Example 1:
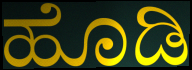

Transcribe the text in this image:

ಹೊಡಿ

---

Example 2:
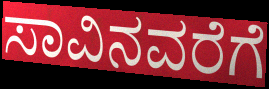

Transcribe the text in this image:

ಸಾವಿನವರೆಗೆ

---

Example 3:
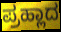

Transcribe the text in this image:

ಪ್ರಹ್ಲಾದ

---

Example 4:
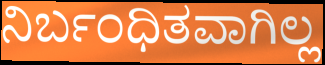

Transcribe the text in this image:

ನಿರ್ಬಂಧಿತವಾಗಿಲ್ಲ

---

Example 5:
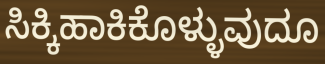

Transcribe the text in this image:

ಸಿಕ್ಕಿಹಾಕಿಕೊಳ್ಳುವುದೂ